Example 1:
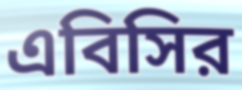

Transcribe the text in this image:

এবিসির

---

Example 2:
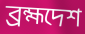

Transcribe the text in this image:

ব্রহ্মদেশ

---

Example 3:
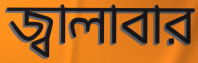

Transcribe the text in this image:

জ্বালাবার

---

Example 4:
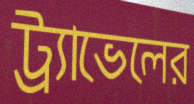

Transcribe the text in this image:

ট্র্যাভেলের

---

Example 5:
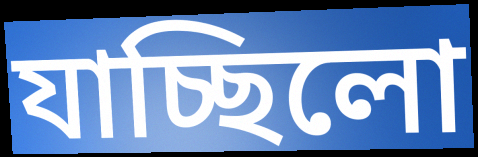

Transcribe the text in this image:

যাচ্ছিলো